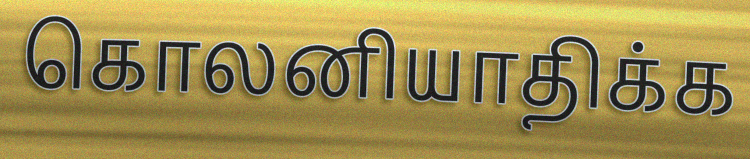
கொலனியாதிக்க